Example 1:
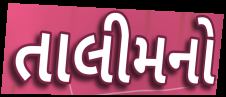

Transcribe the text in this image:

તાલીમનો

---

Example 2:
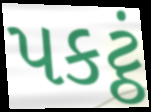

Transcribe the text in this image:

પકટ્ઠં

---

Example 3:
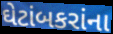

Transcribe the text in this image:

ઘેટાંબકરાંના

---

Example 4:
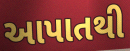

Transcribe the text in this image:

આપાતથી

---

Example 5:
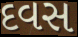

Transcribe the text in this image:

દવસ